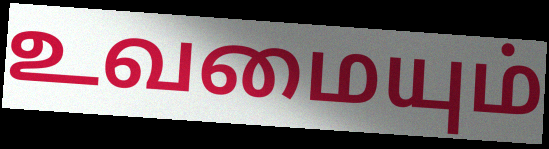
உவமையும்